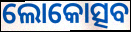
ଲୋକୋତ୍ସବ